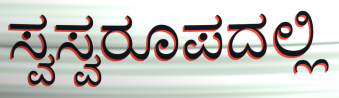
ಸ್ವಸ್ವರೂಪದಲ್ಲಿ